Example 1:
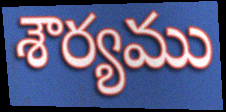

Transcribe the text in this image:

శౌర్యము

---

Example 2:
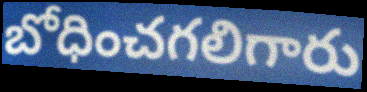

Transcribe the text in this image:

బోధించగలిగారు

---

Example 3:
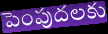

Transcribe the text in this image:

పెంపుదలకు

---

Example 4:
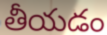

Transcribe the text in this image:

తీయడం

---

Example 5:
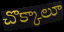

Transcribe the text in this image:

చొక్కాలూ